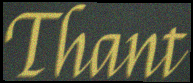
Thant